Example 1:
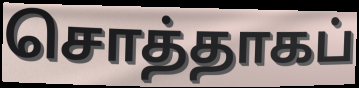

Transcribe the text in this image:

சொத்தாகப்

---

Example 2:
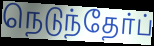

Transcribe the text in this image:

நெடுந்தேர்ப்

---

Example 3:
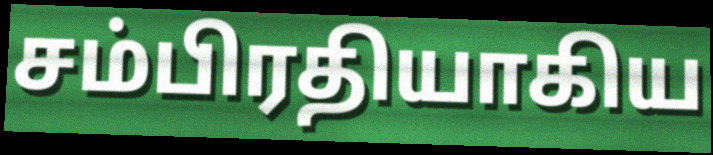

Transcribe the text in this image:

சம்பிரதியாகிய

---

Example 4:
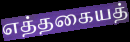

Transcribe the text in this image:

எத்தகையத்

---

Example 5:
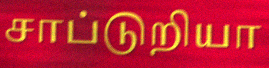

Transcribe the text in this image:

சாப்டுறியா